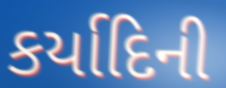
કર્યાદિની